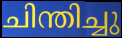
ചിന്തിച്ചു